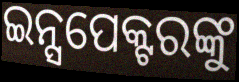
ଇନ୍ସପେକ୍ଟରଙ୍କୁ